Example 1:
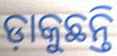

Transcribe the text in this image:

ଡ଼ାକୁଛନ୍ତି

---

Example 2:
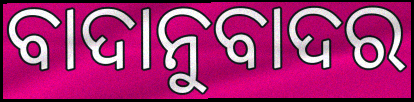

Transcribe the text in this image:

ବାଦାନୁବାଦର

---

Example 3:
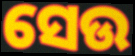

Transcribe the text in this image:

ସେଉ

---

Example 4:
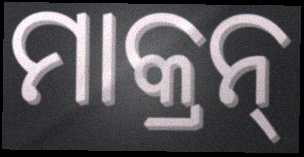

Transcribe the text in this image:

ମାକ୍ରନ୍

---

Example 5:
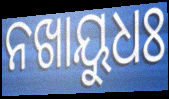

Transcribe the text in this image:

ନଖାୟୁଧଃ